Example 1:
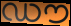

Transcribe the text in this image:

ഡൗ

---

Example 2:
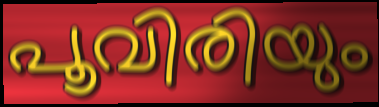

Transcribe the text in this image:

പൂവിരിയും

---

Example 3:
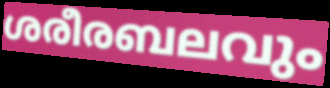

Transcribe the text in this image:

ശരീരബലവും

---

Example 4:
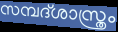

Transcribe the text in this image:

സമ്പദ്ശാസ്ത്രം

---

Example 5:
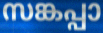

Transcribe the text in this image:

സങ്കപ്പാ